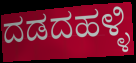
ದಡದಹಳ್ಳಿ